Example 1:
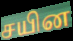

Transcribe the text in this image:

சயின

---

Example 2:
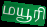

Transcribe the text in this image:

மயூரி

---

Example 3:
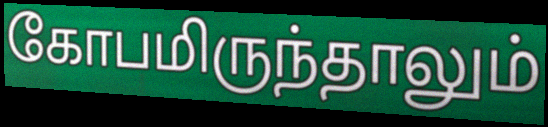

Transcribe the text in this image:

கோபமிருந்தாலும்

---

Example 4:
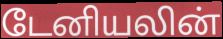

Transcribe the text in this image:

டேனியலின்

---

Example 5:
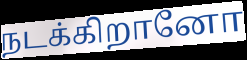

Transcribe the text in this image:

நடக்கிறானோ